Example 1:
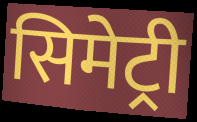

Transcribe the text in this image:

सिमेट्री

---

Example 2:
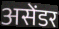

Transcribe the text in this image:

असेंडर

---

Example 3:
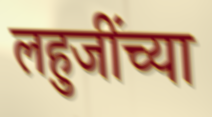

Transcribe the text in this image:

लहुजींच्या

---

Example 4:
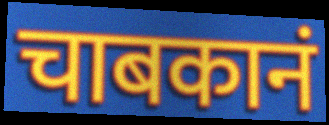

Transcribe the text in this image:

चाबकानं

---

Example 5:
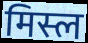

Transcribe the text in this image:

मिस्ल